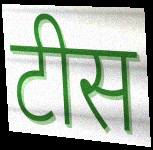
टीस